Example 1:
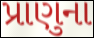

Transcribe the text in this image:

પ્રાણુના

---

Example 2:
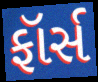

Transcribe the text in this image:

ફૉર્સ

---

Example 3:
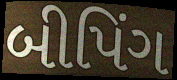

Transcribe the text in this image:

બીપિંગ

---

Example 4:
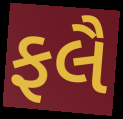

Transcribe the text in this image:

ફલૈ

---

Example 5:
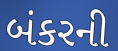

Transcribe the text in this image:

બંકરની